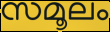
സമൂലം